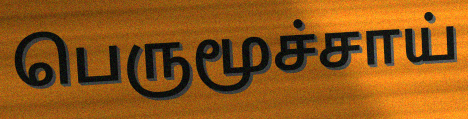
பெருமூச்சாய்